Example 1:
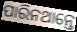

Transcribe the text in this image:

ପାରିନଥାନ୍ତେ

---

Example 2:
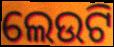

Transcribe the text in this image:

ଲେଉଟି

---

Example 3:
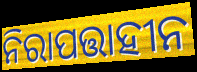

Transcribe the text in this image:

ନିରାପତ୍ତାହୀନ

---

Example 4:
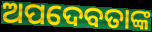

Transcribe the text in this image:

ଅପଦେବତାଙ୍କ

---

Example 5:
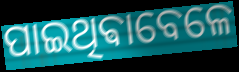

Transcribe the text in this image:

ପାଇଥିଵାବେଳେ